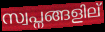
സ്വപ്നങ്ങളില്